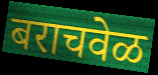
बराचवेळ